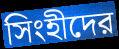
সিংহীদের